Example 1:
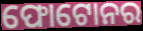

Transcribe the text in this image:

ଫୋଟୋନର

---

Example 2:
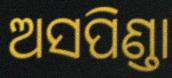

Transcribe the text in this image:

ଅସପିଣ୍ଡା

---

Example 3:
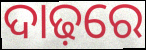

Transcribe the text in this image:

ଦାଢ଼ରେ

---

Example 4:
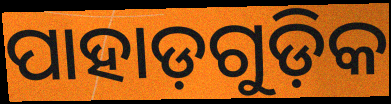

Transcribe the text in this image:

ପାହାଡ଼ଗୁଡ଼ିକ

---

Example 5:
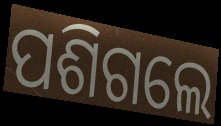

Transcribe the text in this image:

ପଶିଗଲେ